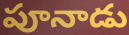
పూనాడు